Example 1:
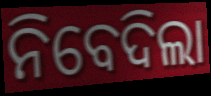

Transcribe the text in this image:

ନିବେଦିଲା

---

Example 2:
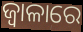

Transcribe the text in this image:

ଜ୍ଵାଳାରେ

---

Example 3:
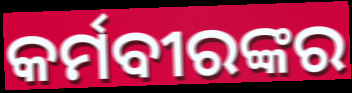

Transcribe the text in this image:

କର୍ମବୀରଙ୍କର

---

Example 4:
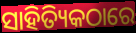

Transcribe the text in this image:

ସାହିତ୍ୟିକଠାରେ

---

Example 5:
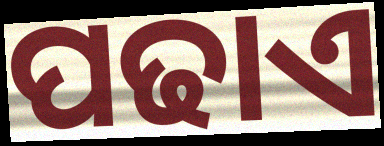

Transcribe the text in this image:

ପଢାଏ